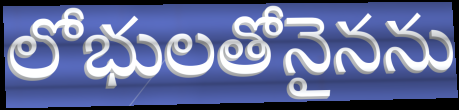
లోభులతోనైనను